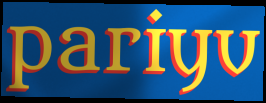
pariyu